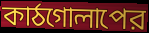
কাঠগোলাপের